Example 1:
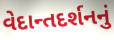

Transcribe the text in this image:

વેદાન્તદર્શનનું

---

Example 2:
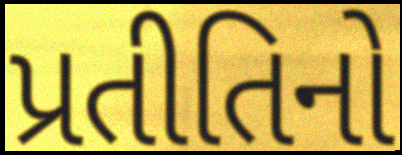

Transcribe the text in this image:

પ્રતીતિનો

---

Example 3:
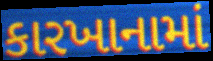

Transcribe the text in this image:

કારખાનામાં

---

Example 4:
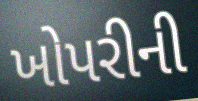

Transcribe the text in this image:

ખોપરીની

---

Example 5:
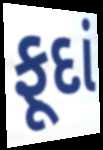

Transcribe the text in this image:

ફૂદાં